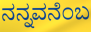
ನನ್ನವನೆಂಬ